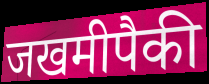
जखमीपैकी